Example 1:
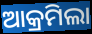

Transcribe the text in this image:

ଆକ୍ରମିଲା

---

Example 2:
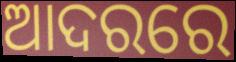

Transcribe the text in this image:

ଆଦରରେ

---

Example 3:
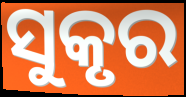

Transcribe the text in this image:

ସୁକୃର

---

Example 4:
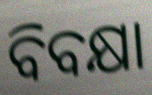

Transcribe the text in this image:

ବିବକ୍ଷା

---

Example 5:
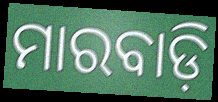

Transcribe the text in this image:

ମାରବାଡ଼ି